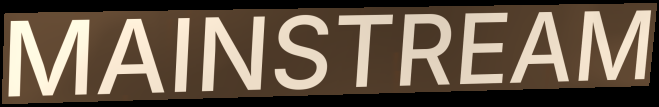
MAINSTREAM